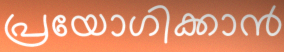
പ്രയോഗിക്കാൻ